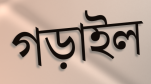
গড়াইল